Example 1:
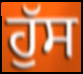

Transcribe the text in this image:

ਹੁੱਸ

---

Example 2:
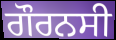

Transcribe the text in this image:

ਗੌਰਨਸੀ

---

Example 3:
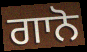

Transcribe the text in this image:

ਗਾਨੋ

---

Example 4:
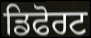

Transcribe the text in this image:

ਡਿਫੋਰਟ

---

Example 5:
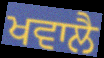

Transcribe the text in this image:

ਖਵਾਲੈ